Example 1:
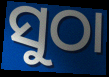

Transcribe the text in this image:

ସୁଠା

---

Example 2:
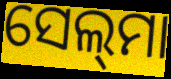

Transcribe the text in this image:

ସେଲ୍‌ମା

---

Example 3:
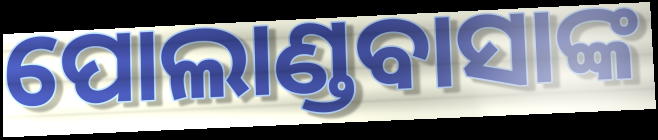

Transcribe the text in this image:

ପୋଲାଣ୍ଡବାସାଙ୍କ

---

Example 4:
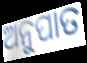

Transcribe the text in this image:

ଅନୁପାତ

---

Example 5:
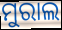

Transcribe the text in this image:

ମୁରାଲ